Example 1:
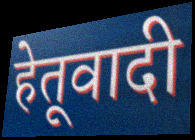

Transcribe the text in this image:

हेतूवादी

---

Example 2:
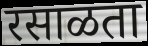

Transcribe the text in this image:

रसाळता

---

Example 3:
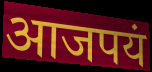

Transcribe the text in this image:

आजपयं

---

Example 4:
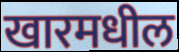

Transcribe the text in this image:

खारमधील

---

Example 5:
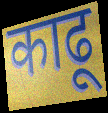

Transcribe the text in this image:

काढू